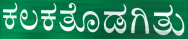
ಕಲಕತೊಡಗಿತು